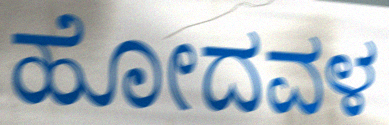
ಹೋದವಳ